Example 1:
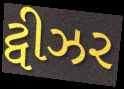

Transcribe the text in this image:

ટ્વીઝર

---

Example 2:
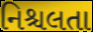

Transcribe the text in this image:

નિશ્ચલતા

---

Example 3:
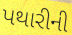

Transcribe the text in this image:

પથારીની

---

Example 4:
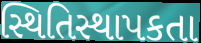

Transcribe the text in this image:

સ્થિતિસ્થાપકતા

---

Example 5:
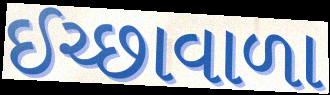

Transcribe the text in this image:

ઈચ્છાવાળા